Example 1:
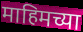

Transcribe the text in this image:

माहिमच्या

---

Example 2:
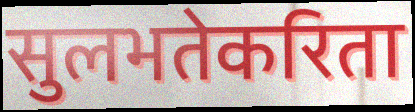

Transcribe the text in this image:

सुलभतेकरिता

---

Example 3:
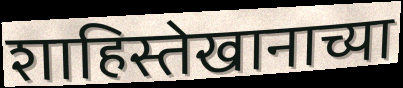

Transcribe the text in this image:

शाहिस्तेखानाच्या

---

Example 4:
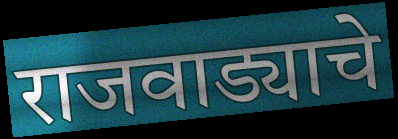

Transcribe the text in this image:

राजवाड्याचे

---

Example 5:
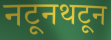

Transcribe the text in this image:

नटूनथटून